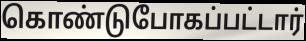
கொண்டுபோகப்பட்டார்